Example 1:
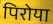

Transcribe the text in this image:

पिरोया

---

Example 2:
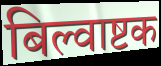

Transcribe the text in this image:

बिल्वाष्टक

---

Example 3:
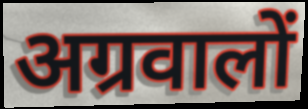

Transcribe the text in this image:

अग्रवालों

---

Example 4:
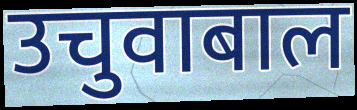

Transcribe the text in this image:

उचुवाबाल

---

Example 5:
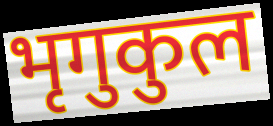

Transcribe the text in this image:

भृगुकुल